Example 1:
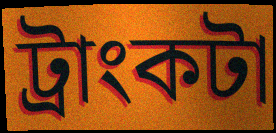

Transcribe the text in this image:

ট্রাংকটা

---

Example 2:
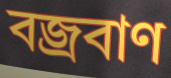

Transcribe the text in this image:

বজ্রবাণ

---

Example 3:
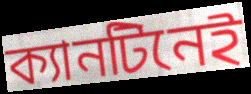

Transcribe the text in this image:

ক্যানটিনেই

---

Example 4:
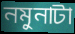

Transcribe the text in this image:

নমুনাটা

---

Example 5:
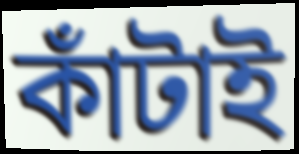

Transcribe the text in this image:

কাঁটাই